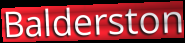
Balderston